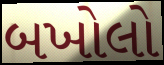
બખોલો